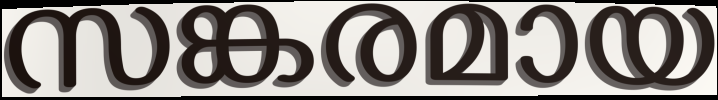
സങ്കരമായ